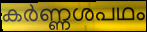
കർണ്ണശപഥം